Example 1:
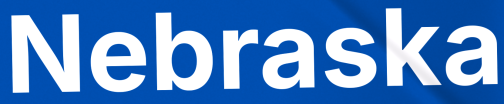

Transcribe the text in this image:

Nebraska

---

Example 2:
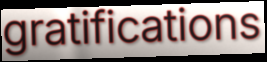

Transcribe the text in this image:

gratifications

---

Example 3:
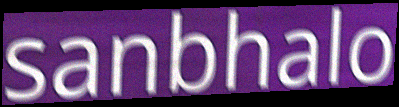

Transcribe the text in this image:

sanbhalo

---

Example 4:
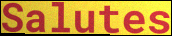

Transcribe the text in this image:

Salutes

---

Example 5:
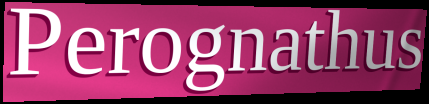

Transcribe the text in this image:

Perognathus